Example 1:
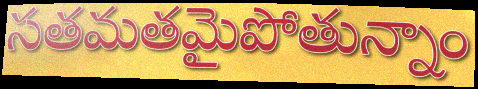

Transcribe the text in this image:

సతమతమైపోతున్నాం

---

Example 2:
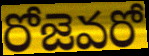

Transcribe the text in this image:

రోజెవరో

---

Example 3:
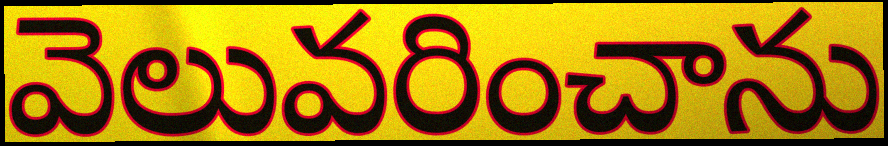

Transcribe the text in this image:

వెలువరించాను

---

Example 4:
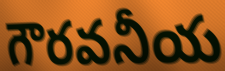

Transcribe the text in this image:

గౌరవనీయ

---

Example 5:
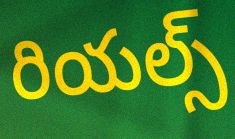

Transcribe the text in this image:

రియల్స్